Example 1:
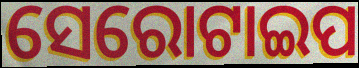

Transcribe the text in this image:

ସେରୋଟାଇପ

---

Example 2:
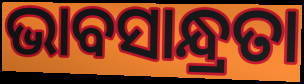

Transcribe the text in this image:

ଭାବସାନ୍ଧ୍ରତା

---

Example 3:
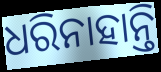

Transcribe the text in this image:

ଧରିନାହାନ୍ତି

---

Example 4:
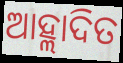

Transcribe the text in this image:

ଆହ୍ଲାଦିତ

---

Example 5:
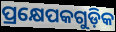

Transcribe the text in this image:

ପ୍ରକ୍ଷେପକଗୁଡ଼ିକ